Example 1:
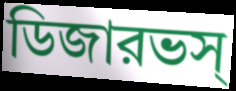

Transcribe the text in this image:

ডিজারভস্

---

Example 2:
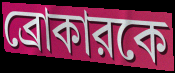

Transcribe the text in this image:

ব্রোকারকে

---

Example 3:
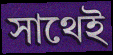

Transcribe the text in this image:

সাথেই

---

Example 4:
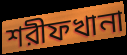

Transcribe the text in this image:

শরীফখানা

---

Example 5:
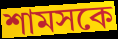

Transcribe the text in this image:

শামসকে